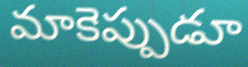
మాకెప్పుడూ